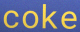
coke